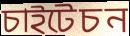
চাইটেচন